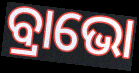
ବ୍ରାଭୋ